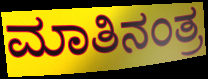
ಮಾತಿನಂತ್ರ